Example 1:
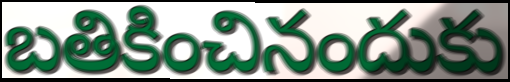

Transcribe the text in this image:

బతికించినందుకు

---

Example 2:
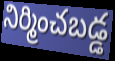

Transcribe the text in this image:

నిర్మించబడ్డ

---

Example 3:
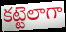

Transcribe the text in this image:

కట్టెలాగా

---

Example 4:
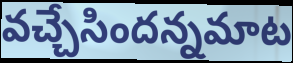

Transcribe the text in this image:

వచ్చేసిందన్నమాట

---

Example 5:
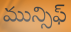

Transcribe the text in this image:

మున్సిఫ్